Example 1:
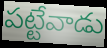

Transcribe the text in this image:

పట్టేవాడు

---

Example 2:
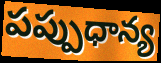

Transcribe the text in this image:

పప్పుధాన్య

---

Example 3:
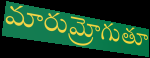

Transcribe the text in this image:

మారుమ్రోగుతూ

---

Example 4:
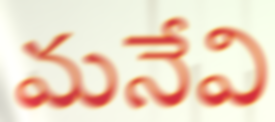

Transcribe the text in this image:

మనేవి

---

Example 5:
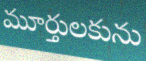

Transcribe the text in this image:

మూర్తులకును